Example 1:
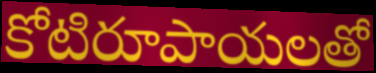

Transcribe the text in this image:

కోటిరూపాయలతో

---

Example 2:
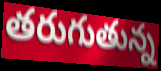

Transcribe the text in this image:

తరుగుతున్న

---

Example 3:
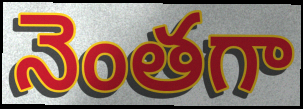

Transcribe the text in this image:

నెంతగా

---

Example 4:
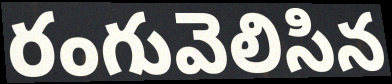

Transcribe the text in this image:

రంగువెలిసిన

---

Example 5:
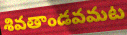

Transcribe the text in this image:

శివతాండవమట